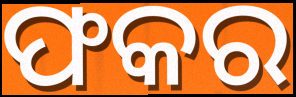
ଫକର